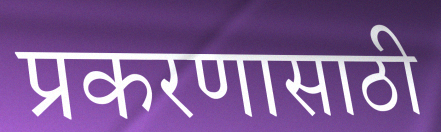
प्रकरणासाठी